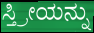
ಸ್ತ್ರೀಯನ್ನು